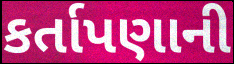
કર્તાપણાની